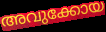
അവുക്കോയ